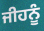
ਜੀਹਨੂੰ